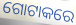
ଗୋଟାକରେ